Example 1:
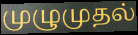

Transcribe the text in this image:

முழுமுதல்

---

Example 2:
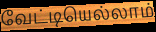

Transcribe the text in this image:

வேட்டியெல்லாம்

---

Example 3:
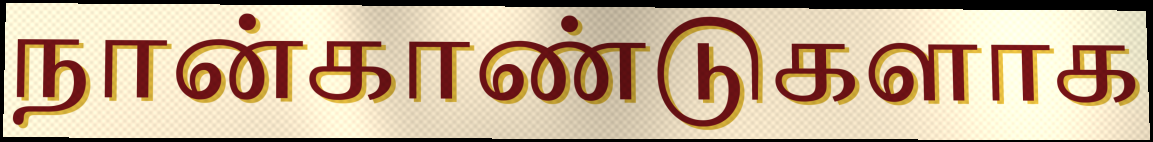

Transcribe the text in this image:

நான்காண்டுகளாக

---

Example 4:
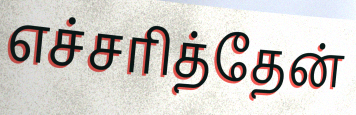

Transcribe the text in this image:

எச்சரித்தேன்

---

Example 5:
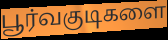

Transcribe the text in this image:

பூர்வகுடிகளை